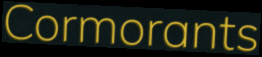
Cormorants